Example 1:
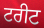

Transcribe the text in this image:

ਟਰੀਟ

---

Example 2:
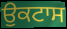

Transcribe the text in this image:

ਉਕਟਾਸ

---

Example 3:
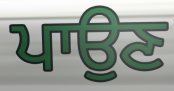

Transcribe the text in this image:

ਪਾਉਣ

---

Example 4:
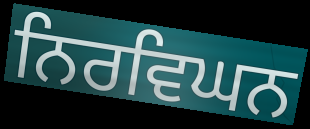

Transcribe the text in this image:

ਨਿਰਵਿਘਨ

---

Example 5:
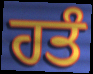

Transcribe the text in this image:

ਹਤੰ